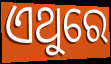
ଏଥୁରେ